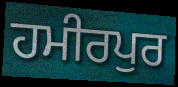
ਹਮੀਰਪੁਰ